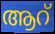
ആറ്